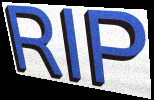
RIP